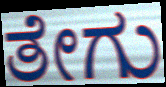
ತೇಗು